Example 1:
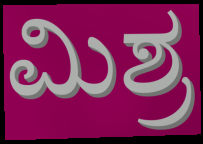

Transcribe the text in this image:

ಮಿಶ್ರ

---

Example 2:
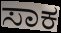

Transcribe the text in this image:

ಸಾಕ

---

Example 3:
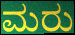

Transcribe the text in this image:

ಮರು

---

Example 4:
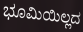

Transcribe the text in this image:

ಭೂಮಿಯಿಲ್ಲದ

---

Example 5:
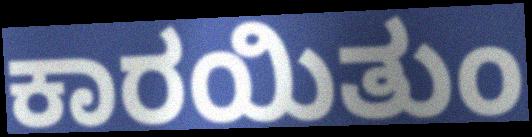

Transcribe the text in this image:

ಕಾರಯಿತುಂ